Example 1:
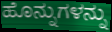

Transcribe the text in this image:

ಹೊನ್ನುಗಳನ್ನು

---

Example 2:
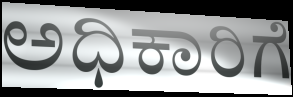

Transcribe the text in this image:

ಅಧಿಕಾರಿಗೆ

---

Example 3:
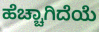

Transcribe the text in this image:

ಹೆಚ್ಚಾಗಿದೆಯೆ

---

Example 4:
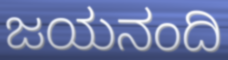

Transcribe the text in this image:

ಜಯನಂದಿ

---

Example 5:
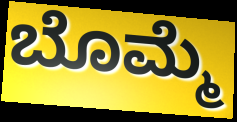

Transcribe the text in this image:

ಬೊಮ್ಮೆ